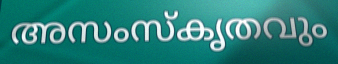
അസംസ്കൃതവും